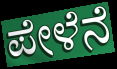
ಪೇಳೆನೆ